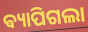
ଵ୍ୟାପିଗଲା